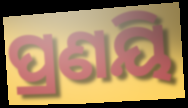
ପ୍ରଣୟି